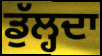
ਡੁੱਲ੍ਹਦਾ